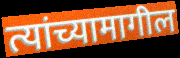
त्यांच्यामागील